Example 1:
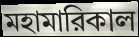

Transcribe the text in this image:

মহামারিকাল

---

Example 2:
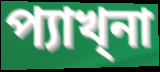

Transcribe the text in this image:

প্যাখ্না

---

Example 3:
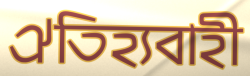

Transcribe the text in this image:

ঐতিহ্যবাহী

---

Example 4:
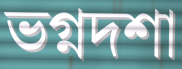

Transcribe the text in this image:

ভগ্নদশা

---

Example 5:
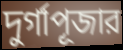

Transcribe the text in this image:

দুর্গাপূজার